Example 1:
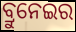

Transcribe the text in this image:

ବ୍ରୁନେଇର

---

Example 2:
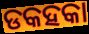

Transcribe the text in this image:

ଡକହକା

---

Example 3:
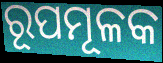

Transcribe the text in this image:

ରୂପମୂଳକ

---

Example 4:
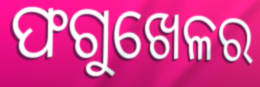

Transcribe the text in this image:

ଫଗୁଖେଳର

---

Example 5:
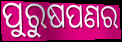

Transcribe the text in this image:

ପୁରୁଷପଣର